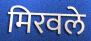
मिरवले